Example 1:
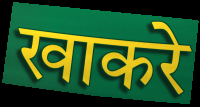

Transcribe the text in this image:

खाकरे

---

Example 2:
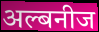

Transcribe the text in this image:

अल्‍बनीज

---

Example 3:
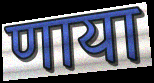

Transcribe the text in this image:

णाया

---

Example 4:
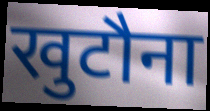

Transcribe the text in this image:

खुटौना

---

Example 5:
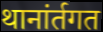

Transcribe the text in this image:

थानांर्तगत